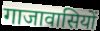
गाजावासियों